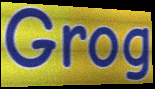
Grog